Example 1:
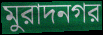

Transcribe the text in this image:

মুরাদনগর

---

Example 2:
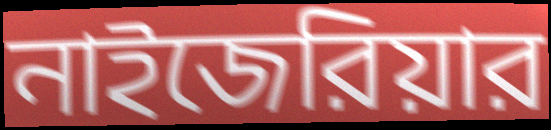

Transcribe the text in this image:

নাইজেরিয়ার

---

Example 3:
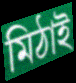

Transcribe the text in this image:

মিঠাই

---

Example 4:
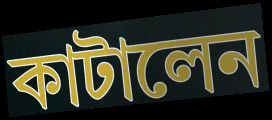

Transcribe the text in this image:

কাটালেন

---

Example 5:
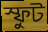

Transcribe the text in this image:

স্ফুট